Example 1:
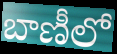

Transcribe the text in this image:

బాణీలో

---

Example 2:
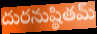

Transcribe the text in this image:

దురనుష్ఠితమ్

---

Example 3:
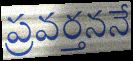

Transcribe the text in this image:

ప్రవర్తననే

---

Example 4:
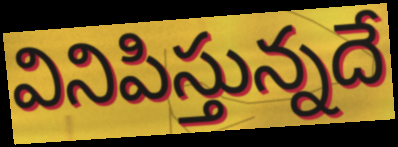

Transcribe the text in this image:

వినిపిస్తున్నదే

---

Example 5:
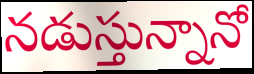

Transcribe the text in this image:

నడుస్తున్నానో